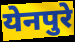
येनपुरे